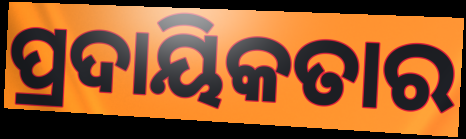
ପ୍ରଦାୟିକତାର